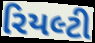
રિયલ્ટી